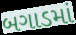
બગાડમાં